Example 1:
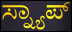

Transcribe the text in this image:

ಸ್ನ್ಯಾಪ್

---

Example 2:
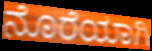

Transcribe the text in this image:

ನೊರೆಯಾಗಿ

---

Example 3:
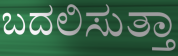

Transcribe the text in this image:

ಬದಲಿಸುತ್ತಾ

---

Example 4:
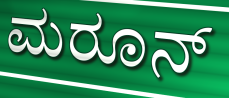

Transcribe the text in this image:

ಮರೂನ್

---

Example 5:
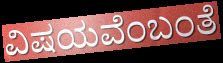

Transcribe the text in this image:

ವಿಷಯವೆಂಬಂತೆ